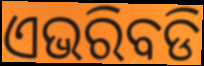
ଏଭରିବଡି